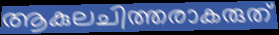
ആകുലചിത്തരാകരുത്